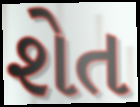
શેત